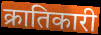
क्रातिकारी